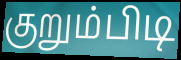
குறும்பிடி